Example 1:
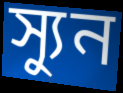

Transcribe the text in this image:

স্যুন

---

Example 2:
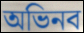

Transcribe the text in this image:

অভিনব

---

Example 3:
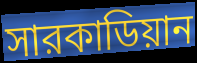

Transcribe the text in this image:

সারকাডিয়ান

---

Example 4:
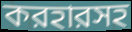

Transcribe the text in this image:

করহারসহ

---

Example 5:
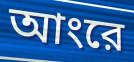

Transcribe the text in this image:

আংরে